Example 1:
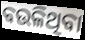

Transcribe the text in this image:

ବଉଳିଥିବା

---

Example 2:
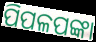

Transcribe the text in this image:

ପିପଳପଙ୍କା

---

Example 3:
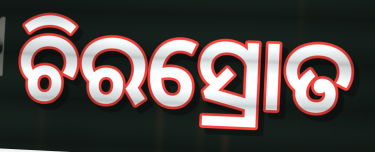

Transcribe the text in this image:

ଚିରସ୍ରୋତ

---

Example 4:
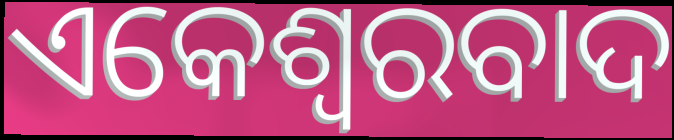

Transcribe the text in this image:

ଏକେଶ୍ୱରବାଦ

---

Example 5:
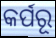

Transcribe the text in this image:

କର୍ପରୂ